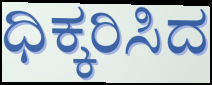
ಧಿಕ್ಕರಿಸಿದ